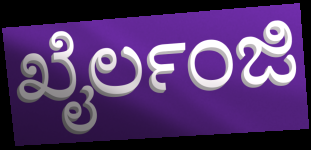
ಖೈರ್ಲಂಜಿ